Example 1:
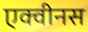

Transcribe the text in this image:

एक्वीनस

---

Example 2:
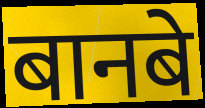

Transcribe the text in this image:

बानबे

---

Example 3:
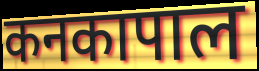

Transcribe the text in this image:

कनकापाल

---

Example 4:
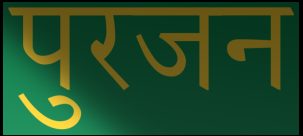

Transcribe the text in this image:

पुरजन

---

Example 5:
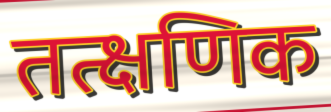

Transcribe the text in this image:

तत्क्षणिक